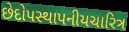
છેદોપસ્થાપનીયચારિત્ર